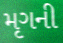
મૃગની